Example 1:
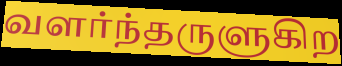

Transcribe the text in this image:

வளர்ந்தருளுகிற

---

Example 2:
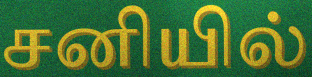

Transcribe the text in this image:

சனியில்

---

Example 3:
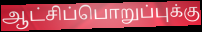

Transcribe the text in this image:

ஆட்சிப்பொறுப்புக்கு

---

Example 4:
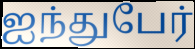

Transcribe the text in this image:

ஐந்துபேர்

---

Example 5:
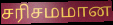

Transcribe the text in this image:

சரிசமமான